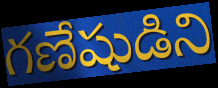
గణేషుడిని